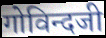
गोविन्दजी